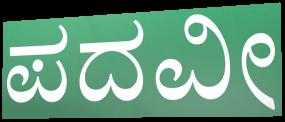
ಪದವೀ